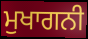
ਮੁਖਾਗਨੀ